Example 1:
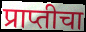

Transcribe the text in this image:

प्राप्तीचा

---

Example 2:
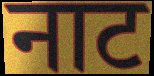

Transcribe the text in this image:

नाट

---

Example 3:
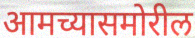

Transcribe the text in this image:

आमच्यासमोरील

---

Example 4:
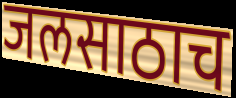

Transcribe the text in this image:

जलसाठाच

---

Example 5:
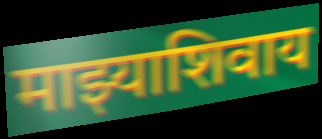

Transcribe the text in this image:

माझ्याशिवाय